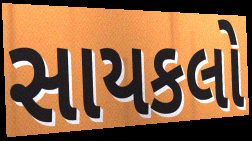
સાયકલો